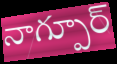
నాగ్పూర్